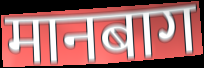
मानबाग